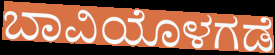
ಬಾವಿಯೊಳಗಡೆ